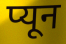
प्यून